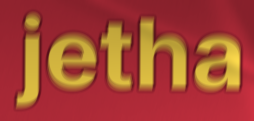
jetha